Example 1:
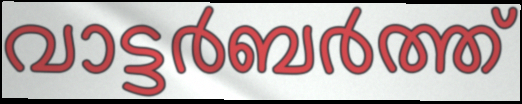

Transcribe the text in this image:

വാട്ടർബർത്ത്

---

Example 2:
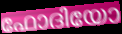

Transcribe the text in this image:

ഫോദിയോ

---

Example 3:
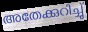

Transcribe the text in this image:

അതേക്കുറിച്ചു്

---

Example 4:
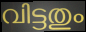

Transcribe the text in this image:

വിട്ടതും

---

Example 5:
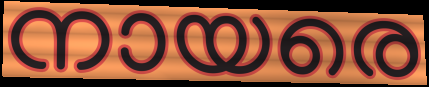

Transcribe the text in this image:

നായരെ